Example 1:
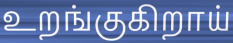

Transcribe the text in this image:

உறங்குகிறாய்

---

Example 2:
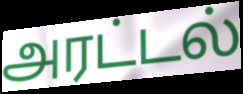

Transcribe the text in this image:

அரட்டல்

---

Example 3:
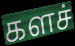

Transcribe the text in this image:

களச்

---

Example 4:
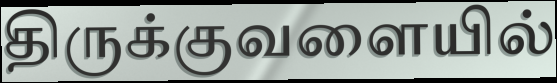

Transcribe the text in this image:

திருக்குவளையில்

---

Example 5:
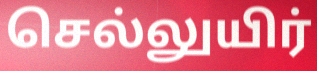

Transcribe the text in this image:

செல்லுயிர்